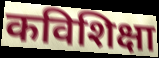
कविशिक्षा